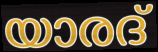
യാരദ്